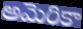
అమెరికా